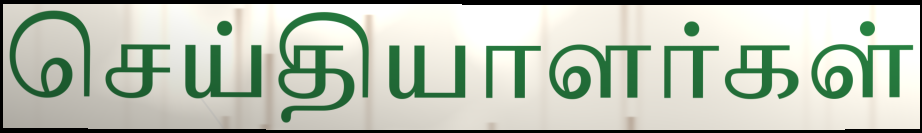
செய்தியாளர்கள்